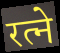
रत्ने